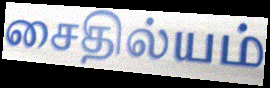
சைதில்யம்